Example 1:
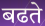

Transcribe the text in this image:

बढते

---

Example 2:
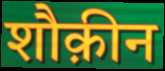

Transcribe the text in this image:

शौक़ीन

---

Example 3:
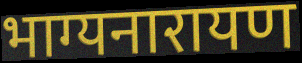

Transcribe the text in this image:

भाग्यनारायण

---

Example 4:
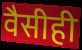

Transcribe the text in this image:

वैसीही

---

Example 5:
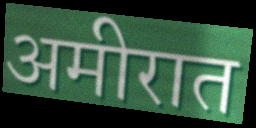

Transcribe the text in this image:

अमीरात